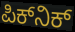
ಪಿಕ್‌ನಿಕ್